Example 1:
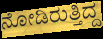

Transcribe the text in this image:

ನೋಡಿರುತ್ತಿದ್ದ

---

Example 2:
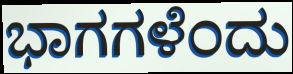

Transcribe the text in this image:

ಭಾಗಗಳೆಂದು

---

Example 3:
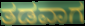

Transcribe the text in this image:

ತಡವಾಗ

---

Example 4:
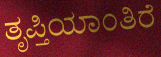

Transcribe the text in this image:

ತೃಪ್ತಿಯಾಂತಿರೆ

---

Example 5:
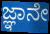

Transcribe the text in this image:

ಜ್ಞಾನೇ